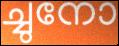
ച്ചുനോ